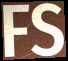
FS